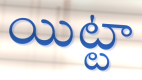
యిట్టా